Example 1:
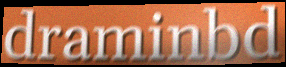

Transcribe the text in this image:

draminbd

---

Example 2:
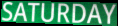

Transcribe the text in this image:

SATURDAY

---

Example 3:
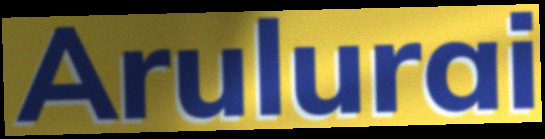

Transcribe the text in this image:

Arulurai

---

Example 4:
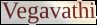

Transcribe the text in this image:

Vegavathi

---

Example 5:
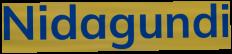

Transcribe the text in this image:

Nidagundi